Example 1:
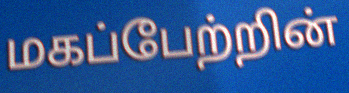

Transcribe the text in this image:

மகப்பேற்றின்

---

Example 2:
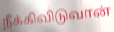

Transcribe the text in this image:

நீக்கிவிடுவான்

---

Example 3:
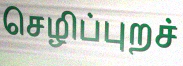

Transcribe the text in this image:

செழிப்புறச்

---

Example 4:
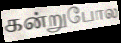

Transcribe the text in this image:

கன்றுபோல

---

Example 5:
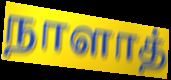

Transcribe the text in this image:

நாளாத்